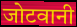
जोटवानी